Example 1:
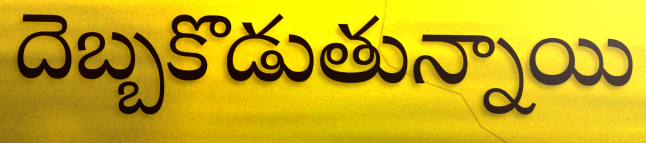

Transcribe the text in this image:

దెబ్బకొడుతున్నాయి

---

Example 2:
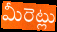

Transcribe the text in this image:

మీరెట్లు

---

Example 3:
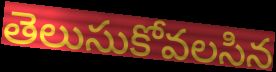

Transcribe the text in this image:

తెలుసుకోవలసిన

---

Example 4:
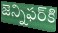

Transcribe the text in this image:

జెన్నిఫర్‌కి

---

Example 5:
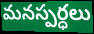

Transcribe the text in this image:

మనస్పర్ధలు